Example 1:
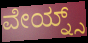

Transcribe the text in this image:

ವೇಯ್ನ್ಸ್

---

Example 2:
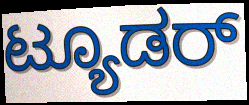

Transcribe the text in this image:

ಟ್ಯೂಡರ್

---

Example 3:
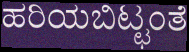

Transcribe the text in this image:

ಹರಿಯಬಿಟ್ಟಂತೆ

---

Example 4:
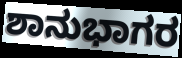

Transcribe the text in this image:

ಶಾನುಭಾಗರ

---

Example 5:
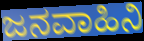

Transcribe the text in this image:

ಜನವಾಹಿನಿ